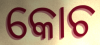
କୋଚ